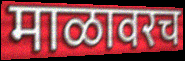
माळावरच